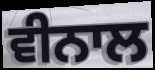
ਵੀਨਾਲ